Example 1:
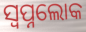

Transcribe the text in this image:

ସ୍ଵପ୍ନଲୋକ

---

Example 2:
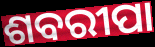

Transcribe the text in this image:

ଶବରୀପା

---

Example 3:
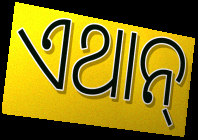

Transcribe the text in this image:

ଏଥାନ୍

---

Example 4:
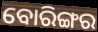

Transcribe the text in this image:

ବୋରିଙ୍ଗର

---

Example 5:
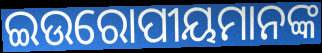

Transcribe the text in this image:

ଇଉରୋପୀୟମାନଙ୍କ